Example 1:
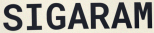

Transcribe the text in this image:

SIGARAM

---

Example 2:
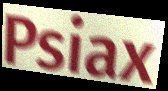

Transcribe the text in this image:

Psiax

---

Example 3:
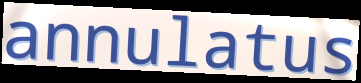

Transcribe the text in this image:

annulatus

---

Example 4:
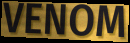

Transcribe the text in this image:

VENOM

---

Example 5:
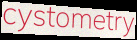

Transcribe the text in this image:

cystometry